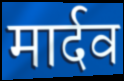
मार्दव